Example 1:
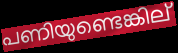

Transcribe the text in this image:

പണിയുണ്ടെങ്കില്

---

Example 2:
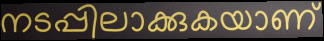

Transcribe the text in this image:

നടപ്പിലാക്കുകയാണ്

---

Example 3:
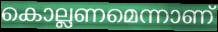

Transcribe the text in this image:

കൊല്ലണമെന്നാണ്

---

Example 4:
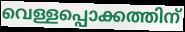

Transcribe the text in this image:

വെള്ളപ്പൊക്കത്തിന്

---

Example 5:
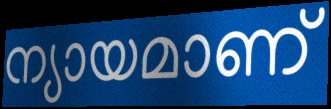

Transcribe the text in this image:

ന്യായമാണ്